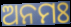
ଅନମଃ